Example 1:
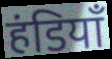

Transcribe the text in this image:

हंडियाँ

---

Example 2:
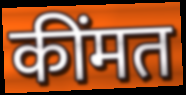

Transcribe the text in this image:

कींमत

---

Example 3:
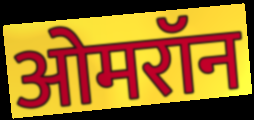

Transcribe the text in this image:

ओमरॉन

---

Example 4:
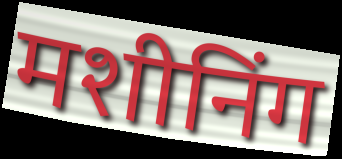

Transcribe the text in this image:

मशीनिंग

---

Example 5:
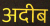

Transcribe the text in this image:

अदीब